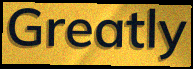
Greatly